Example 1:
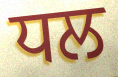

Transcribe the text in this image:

ਧਲ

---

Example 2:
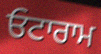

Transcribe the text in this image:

ਓਟਾਰਾਮ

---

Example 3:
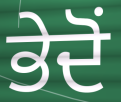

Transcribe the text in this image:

ਭੇਦੋਂ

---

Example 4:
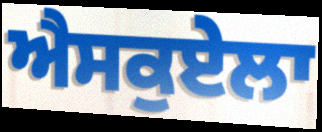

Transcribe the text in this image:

ਐਸਕੁਏਲਾ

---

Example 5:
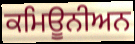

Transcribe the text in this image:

ਕਮਿਊਨੀਅਨ